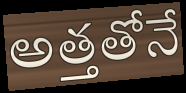
అత్తతోనే